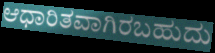
ಆಧಾರಿತವಾಗಿರಬಹುದು